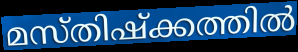
മസ്തിഷ്ക്കത്തിൽ